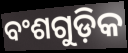
ବଂଶଗୁଡ଼ିକ